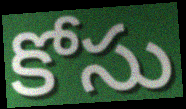
కోసు